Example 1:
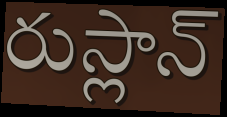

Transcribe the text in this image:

రుస్లాన్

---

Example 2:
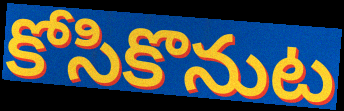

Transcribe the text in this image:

కోసికొనుట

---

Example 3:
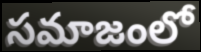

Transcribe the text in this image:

సమాజంలో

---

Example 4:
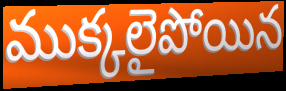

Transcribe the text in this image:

ముక్కలైపోయిన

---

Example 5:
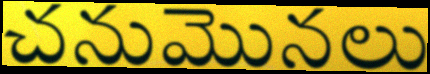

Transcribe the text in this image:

చనుమొనలు